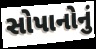
સોપાનોનું